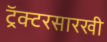
ट्रॅक्टरसारखी